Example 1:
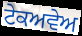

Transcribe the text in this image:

ਟੇਕਅਵੇਅ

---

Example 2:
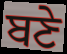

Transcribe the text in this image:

ਬਣੇ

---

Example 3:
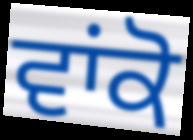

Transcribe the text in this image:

ਵਾਂਕੋ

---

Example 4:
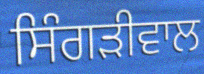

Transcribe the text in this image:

ਸਿੰਗੜੀਵਾਲ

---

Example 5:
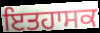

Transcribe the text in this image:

ਇਤਹਾਸਕ